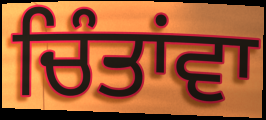
ਚਿੰਤਾਂਵਾ